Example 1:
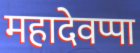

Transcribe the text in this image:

महादेवप्पा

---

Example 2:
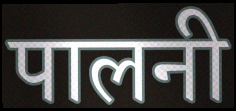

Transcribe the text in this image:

पालनी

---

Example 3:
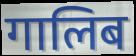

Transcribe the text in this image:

गालिब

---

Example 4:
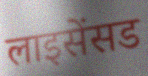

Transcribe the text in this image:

लाइसेंसड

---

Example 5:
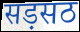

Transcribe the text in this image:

सड़सठ